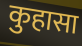
कुहासा